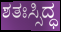
ಶತಃಸ್ಸಿದ್ಧ